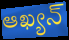
ఆఖ్యన్